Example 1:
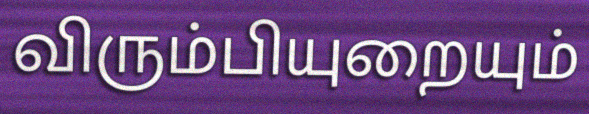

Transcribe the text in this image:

விரும்பியுறையும்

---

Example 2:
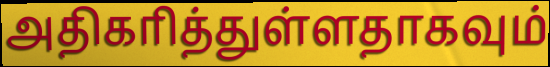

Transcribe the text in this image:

அதிகரித்துள்ளதாகவும்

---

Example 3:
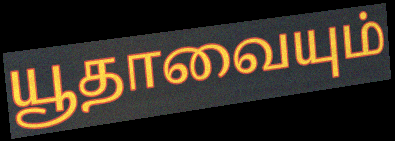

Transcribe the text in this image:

யூதாவையும்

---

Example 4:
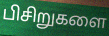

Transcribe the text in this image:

பிசிறுகளை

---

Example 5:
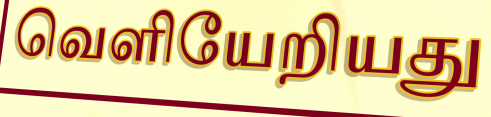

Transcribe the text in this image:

வெளியேறியது